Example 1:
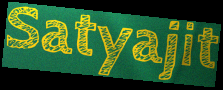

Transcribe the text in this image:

Satyajit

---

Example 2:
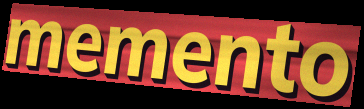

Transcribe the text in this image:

memento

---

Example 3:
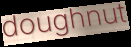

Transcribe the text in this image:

doughnut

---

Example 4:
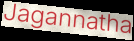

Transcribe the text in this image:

Jagannatha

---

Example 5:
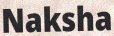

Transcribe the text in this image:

Naksha